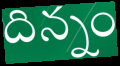
దిన్నం